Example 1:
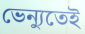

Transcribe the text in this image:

ভেন্যুতেই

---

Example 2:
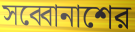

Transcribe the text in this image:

সব্বোনাশের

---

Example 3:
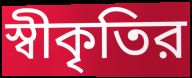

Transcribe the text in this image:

স্বীকৃতির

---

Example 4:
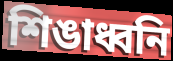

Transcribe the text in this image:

শিঙাধ্বনি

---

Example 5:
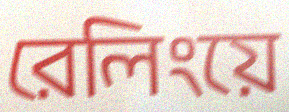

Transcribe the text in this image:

রেলিংয়ে